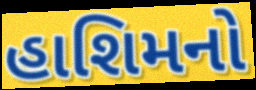
હાશિમનો